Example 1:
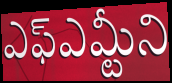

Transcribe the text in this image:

ఎఫ్ఎమ్టీని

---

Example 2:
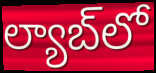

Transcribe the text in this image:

ల్యాబ్‌లో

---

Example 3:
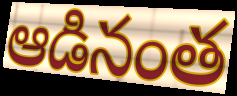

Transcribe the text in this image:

ఆడినంత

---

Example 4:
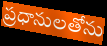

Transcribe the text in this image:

ప్రధానులతోను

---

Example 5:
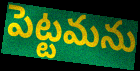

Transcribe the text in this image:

పెట్టమను